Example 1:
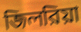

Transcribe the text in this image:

জিলরিয়া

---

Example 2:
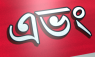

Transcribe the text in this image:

এভং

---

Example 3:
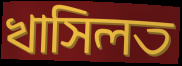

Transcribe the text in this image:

খাসিলত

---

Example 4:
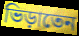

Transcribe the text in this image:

ভিড়াতেন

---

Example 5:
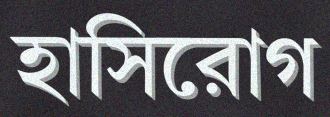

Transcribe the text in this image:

হাসিরোগ